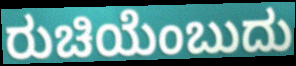
ರುಚಿಯೆಂಬುದು